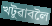
খটুৱাবলৈ